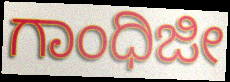
ಗಾಂಧಿಜೀ